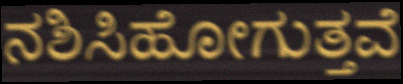
ನಶಿಸಿಹೋಗುತ್ತವೆ